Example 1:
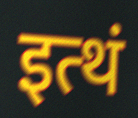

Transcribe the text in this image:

इत्थं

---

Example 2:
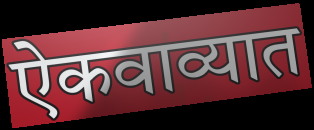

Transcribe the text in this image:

ऐकवाव्यात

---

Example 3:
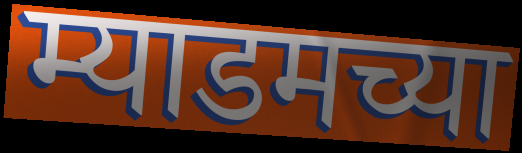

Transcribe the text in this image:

म्याडमच्या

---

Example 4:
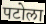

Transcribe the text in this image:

पटोला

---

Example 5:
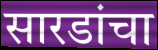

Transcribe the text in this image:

सारडांचा